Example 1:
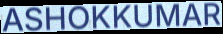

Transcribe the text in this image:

ASHOKKUMAR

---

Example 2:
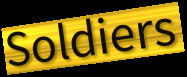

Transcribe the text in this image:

Soldiers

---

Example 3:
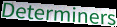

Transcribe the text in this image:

Determiners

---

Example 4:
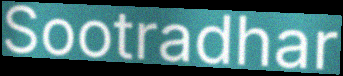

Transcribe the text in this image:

Sootradhar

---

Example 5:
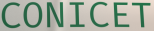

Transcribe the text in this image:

CONICET